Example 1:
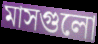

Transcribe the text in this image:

মাসগুলো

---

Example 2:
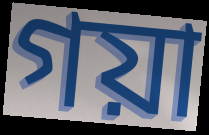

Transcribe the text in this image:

গয়া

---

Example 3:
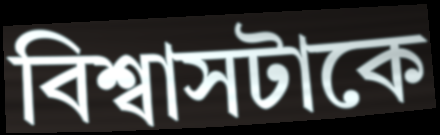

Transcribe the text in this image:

বিশ্বাসটাকে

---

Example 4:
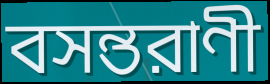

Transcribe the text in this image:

বসন্তরাণী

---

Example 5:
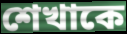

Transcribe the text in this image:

শেখাকে